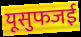
यूसुफजई